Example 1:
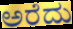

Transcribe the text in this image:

ಅರೆದು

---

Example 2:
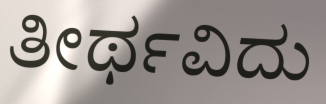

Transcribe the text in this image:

ತೀರ್ಥವಿದು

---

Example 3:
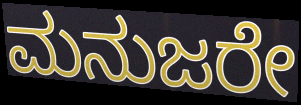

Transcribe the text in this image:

ಮನುಜರೇ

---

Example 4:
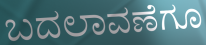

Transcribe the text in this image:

ಬದಲಾವಣೆಗೂ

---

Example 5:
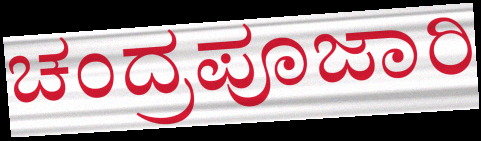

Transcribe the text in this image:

ಚಂದ್ರಪೂಜಾರಿ